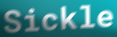
Sickle